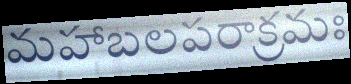
మహాబలపరాక్రమః